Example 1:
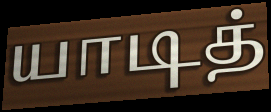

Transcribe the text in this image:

யாடித்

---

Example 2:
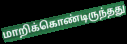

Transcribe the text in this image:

மாறிக்கொண்டிருந்தது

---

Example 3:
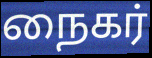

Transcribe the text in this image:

நைகர்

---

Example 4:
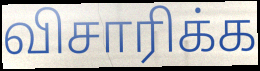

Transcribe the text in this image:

விசாரிக்க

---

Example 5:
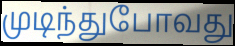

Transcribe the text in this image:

முடிந்துபோவது